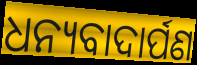
ଧନ୍ୟବାଦାର୍ପଣ